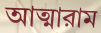
আত্মারাম